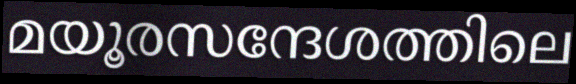
മയൂരസന്ദേശത്തിലെ